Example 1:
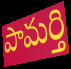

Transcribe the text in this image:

పామర్తి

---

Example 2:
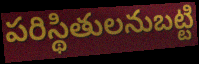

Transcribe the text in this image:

పరిస్థితులనుబట్టి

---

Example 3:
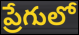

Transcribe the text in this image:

ప్రేగులో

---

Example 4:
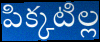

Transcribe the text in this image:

పిక్కటిల్ల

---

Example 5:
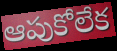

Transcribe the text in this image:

ఆపుకోలేక